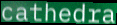
cathedra